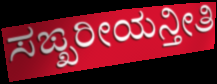
ಸಙ್ಖರೀಯನ್ತೀತಿ